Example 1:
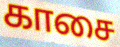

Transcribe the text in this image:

காசை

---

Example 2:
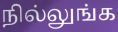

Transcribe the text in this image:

நில்லுங்க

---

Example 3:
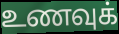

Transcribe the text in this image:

உணவுக்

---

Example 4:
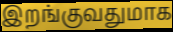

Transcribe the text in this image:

இறங்குவதுமாக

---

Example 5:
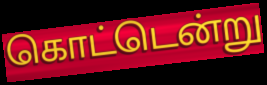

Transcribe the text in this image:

கொட்டென்று